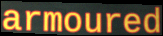
armoured